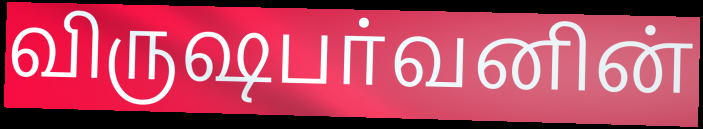
விருஷபர்வனின்